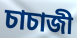
চাচাজী